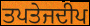
ਤਪਤੇਜਦੀਪ